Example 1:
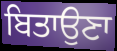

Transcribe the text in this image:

ਬਿਤਾਉਣਾ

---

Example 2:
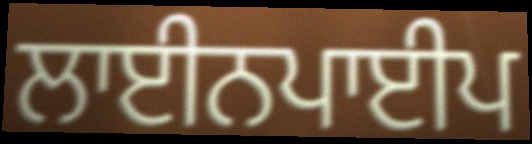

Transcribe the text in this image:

ਲਾਈਨਪਾਈਪ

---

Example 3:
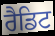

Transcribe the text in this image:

ਰੈਡਿਟ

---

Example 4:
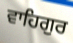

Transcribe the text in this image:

ਵਾਹਿਗੁਰ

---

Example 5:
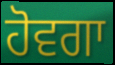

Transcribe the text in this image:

ਹੋਵਗਾ